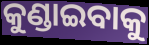
କୁଣ୍ଡାଇବାକୁ